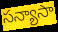
సన్యాసా